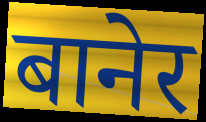
बानेर